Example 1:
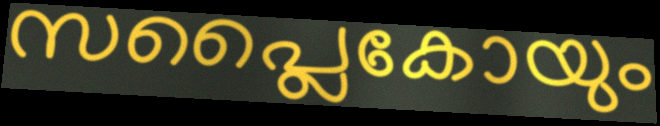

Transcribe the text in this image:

സപ്ലൈകോയും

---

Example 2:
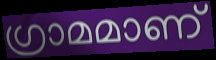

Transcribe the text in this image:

ഗ്രാമമാണ്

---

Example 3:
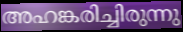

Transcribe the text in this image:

അഹങ്കരിച്ചിരുന്നു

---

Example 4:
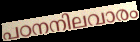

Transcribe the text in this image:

പഠനനിലവാരം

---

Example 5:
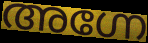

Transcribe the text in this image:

അഗ്നേ